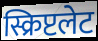
स्क्रिप्टलेट